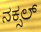
ನಕ್ಸಲ್